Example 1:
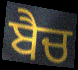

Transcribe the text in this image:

ਬੈਚ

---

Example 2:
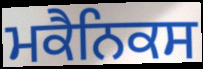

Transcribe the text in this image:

ਮਕੈਨਿਕਸ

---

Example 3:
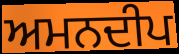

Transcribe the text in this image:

ਅਮਨਦੀਪ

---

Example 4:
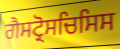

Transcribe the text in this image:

ਗੈਸਟ੍ਰੋਸਚਿਸਿਸ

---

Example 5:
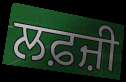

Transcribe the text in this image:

ਲਫ਼ਜ਼ੀ